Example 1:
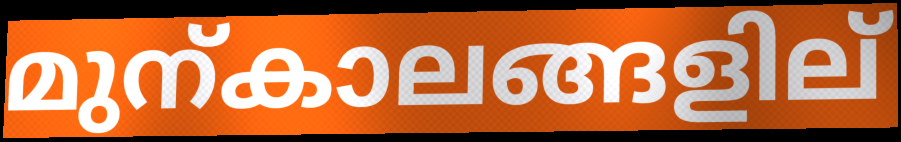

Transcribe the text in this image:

മുന്കാലങ്ങളില്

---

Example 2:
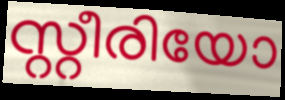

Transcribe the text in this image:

സ്റ്റീരിയോ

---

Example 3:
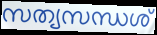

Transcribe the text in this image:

സത്യസന്ധശ്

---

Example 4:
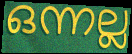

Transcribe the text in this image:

ഒന്നല്ല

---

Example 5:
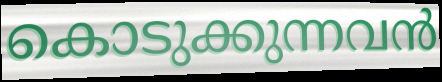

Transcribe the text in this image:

കൊടുക്കുന്നവൻ